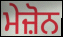
ਮੇਜ਼ੋਨ